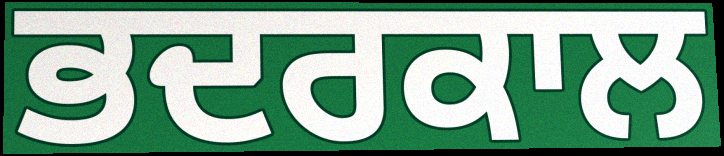
ਭਦਰਕਾਲ